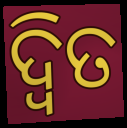
ଦ୍ବିତ